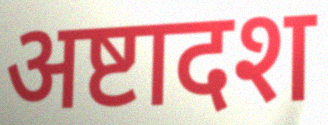
अष्टादश